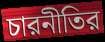
চারনীতির